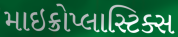
માઇક્રોપ્લાસ્ટિક્સ